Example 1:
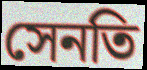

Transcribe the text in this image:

সেনতি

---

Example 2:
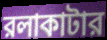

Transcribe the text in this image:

রলাকাটার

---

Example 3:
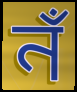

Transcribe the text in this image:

নঁ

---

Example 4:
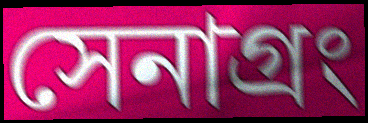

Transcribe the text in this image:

সেনাগ্রং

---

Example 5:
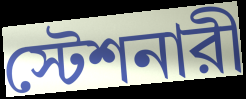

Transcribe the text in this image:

স্টেশনারী